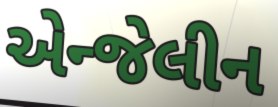
એન્જેલીન